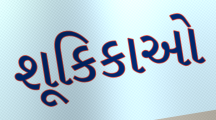
શૂકિકાઓ